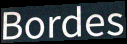
Bordes